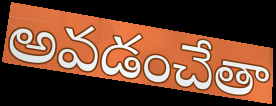
అవడంచేతా